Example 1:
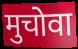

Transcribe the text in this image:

मुचोवा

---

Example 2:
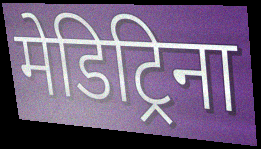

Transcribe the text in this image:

मेडिट्रिना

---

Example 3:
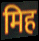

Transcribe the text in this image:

मिह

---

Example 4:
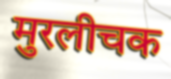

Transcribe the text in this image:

मुरलीचक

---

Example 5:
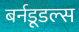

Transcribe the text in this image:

बर्नडूडल्स